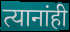
त्यानांही